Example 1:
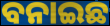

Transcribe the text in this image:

ବନାଇଛ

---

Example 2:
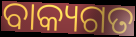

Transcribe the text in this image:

ବାକ୍ୟଗତ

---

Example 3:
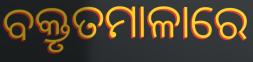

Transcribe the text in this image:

ବକ୍ତୃତମାଳାରେ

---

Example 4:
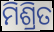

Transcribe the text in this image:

ମିଶ୍ରିତ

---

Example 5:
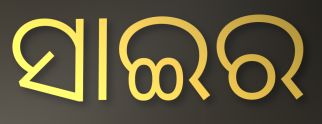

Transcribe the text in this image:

ସାଇର